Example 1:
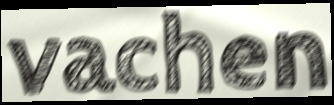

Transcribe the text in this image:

vachen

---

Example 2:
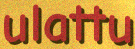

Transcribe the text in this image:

ulattu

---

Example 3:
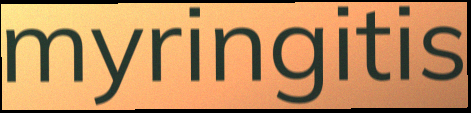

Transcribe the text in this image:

myringitis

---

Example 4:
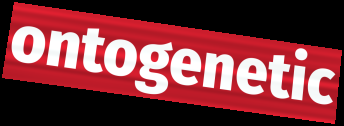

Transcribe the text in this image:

ontogenetic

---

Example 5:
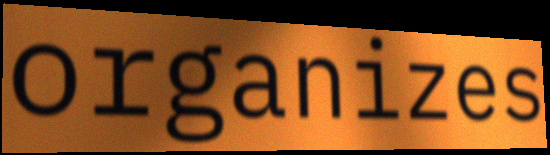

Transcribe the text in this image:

organizes